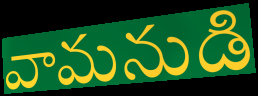
వామనుడి